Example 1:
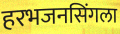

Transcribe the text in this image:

हरभजनसिंगला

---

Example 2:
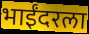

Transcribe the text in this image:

भाईंदरला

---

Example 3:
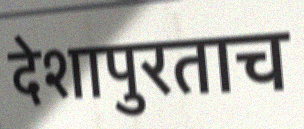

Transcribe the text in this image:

देशापुरताच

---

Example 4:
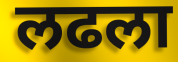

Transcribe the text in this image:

लढला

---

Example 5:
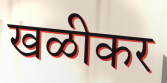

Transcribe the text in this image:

खळीकर